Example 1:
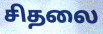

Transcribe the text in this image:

சிதலை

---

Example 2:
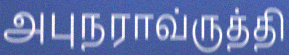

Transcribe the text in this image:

அபுநராவ்ருத்தி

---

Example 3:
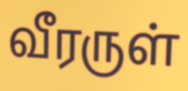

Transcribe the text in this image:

வீரருள்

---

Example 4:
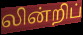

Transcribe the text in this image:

லின்றிப்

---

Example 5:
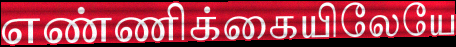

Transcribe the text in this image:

எண்ணிக்கையிலேயே